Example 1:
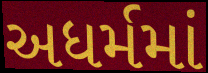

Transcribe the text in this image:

અધર્મમાં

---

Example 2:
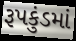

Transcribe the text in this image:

રૂપકુંડમાં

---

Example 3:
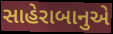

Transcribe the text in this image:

સાહેરાબાનુએ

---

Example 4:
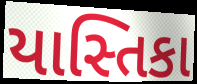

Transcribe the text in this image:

યાસ્તિકા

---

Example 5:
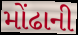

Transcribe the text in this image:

મોંઢાની